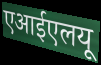
एआईएलयू